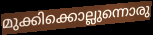
മുക്കിക്കൊല്ലുന്നൊരു